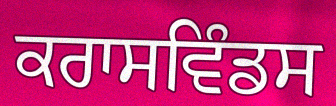
ਕਰਾਸਵਿੰਡਸ